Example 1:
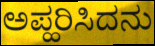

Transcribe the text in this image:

ಅಪ್ಹರಿಸಿದನು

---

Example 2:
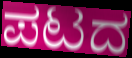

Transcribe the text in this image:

ಪಟದ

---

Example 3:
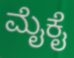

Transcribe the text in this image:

ಮೈಕೈ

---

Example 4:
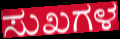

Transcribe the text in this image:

ಸುಖಗಳ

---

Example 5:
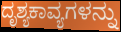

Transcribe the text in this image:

ದೃಶ್ಯಕಾವ್ಯಗಳನ್ನು